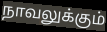
நாவலுக்கும்